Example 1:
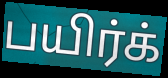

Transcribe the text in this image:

பயிர்க்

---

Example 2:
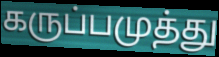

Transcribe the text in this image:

கருப்பமுத்து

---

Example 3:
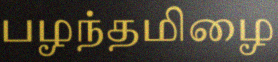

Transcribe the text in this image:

பழந்தமிழை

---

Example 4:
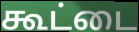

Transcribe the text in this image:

கூட்டை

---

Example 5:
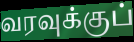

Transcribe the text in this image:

வரவுக்குப்